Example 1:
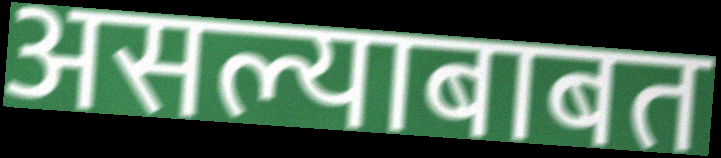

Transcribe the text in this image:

असल्याबाबत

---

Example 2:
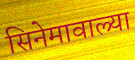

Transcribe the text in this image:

सिनेमावाल्या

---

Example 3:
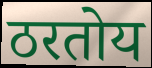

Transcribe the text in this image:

ठरतोय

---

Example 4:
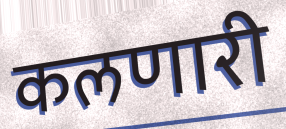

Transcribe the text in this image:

कलणारी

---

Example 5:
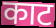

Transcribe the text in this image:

काट